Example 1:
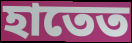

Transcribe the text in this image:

হাতেত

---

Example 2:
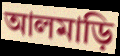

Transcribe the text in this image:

আলমাড়ি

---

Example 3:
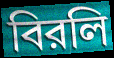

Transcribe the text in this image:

বিরলি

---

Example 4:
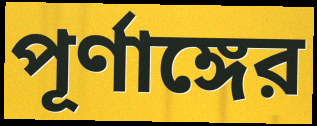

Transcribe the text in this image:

পূর্ণাঙ্গের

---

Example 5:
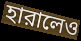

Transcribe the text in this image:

হারালেও